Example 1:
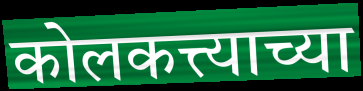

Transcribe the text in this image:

कोलकत्त्याच्या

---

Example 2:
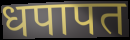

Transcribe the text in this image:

धपापत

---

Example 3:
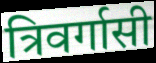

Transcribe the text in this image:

त्रिवर्गासी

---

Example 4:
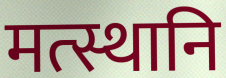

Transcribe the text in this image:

मत्स्थानि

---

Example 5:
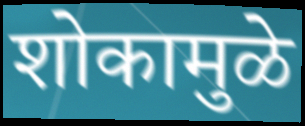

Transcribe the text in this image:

शोकामुळे